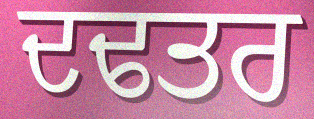
ਦਢਤਰ